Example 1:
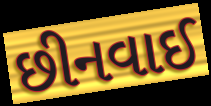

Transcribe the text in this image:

છીનવાઈ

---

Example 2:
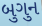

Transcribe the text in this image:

બુગુન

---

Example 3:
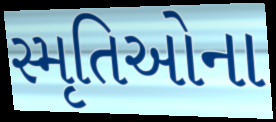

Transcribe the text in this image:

સ્મૃતિઓના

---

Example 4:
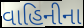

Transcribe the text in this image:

વાહિનીના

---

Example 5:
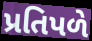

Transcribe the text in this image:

પ્રતિપળે